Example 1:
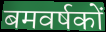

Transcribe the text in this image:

बमवर्षकों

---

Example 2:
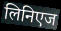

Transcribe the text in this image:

लिनिएज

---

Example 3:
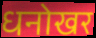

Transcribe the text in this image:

धनोखर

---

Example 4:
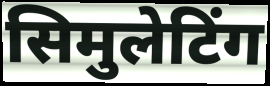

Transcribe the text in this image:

सिमुलेटिंग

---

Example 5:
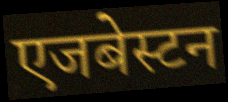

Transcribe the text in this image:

एजबेस्टन